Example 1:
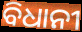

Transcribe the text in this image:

ବିଧାନୀ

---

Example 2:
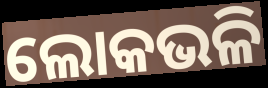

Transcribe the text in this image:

ଲୋକଭଳି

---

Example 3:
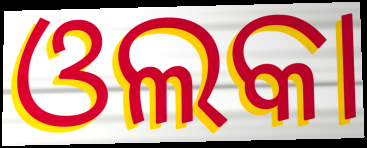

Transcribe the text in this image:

ଓଲକା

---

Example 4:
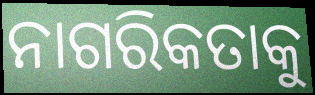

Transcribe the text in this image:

ନାଗରିକତାକୁ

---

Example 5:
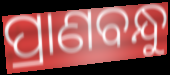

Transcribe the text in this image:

ପ୍ରାଣବନ୍ଧୁ